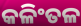
କଳିଂତଳ